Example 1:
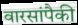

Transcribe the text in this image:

वारसांपैकी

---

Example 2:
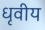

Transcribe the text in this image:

धृवीय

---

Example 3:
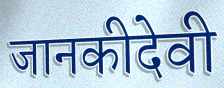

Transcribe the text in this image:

जानकीदेवी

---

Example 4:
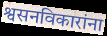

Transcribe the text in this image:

श्वसनविकारांना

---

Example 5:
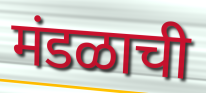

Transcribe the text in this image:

मंडळाची